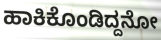
ಹಾಕಿಕೊಂಡಿದ್ದನೋ